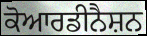
ਕੋਆਰਡੀਨੈਸ਼ਨ